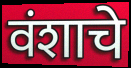
वंशाचे